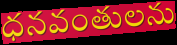
ధనవంతులను